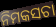
ନିମକସଚା